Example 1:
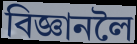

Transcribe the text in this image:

বিজ্ঞানলৈ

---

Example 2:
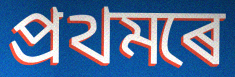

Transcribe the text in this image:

প্ৰথমৰে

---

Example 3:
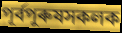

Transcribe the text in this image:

পূৰ্বপুৰুষসকলক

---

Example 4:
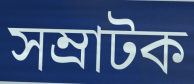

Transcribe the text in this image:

সম্ৰাটক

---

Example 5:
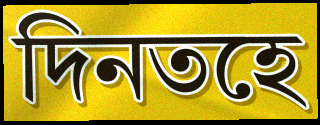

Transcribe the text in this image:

দিনতহে